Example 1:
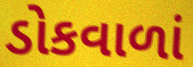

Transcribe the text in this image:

ડોકવાળાં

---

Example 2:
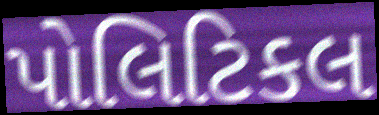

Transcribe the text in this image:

પોલિટિકલ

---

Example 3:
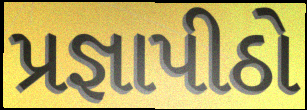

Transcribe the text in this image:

પ્રજ્ઞાપીઠો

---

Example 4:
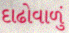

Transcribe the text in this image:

દાઢોવાળું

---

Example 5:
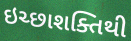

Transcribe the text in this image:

ઇચ્છાશક્તિથી